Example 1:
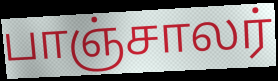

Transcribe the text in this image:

பாஞ்சாலர்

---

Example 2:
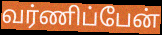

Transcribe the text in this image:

வர்ணிப்பேன்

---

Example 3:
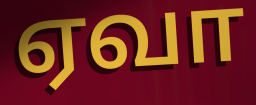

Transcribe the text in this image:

ஏவா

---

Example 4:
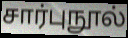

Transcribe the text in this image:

சார்புநூல்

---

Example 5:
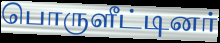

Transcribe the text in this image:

பொருளீட்டினர்